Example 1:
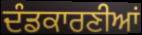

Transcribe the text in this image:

ਦੰਡਕਾਰਣੀਆਂ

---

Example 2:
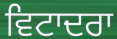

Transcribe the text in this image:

ਵਿਟਾਦਰਾ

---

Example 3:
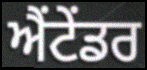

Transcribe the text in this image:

ਐਂਟੇਂਡਰ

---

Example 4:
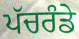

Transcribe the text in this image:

ਪੱਚਰੰਡੇ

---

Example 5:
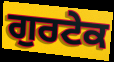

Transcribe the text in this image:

ਗੁਰਟੇਕ